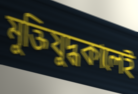
মুক্তিযুদ্ধকালেই